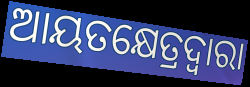
ଆୟତକ୍ଷେତ୍ରଦ୍ଵାରା